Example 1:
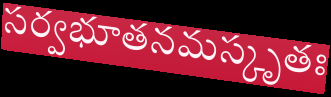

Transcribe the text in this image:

సర్వభూతనమస్కృతః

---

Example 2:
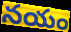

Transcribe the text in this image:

నయం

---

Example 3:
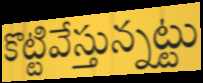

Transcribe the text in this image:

కొట్టివేస్తున్నట్టు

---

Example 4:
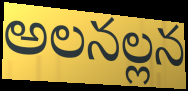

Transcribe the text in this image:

అలనల్లన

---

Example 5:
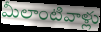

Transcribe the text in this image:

మీలాంటివాళ్లు